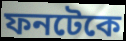
ফনটেকে